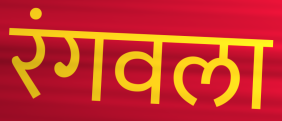
रंगवला